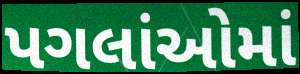
પગલાંઓમાં